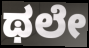
ಥಲೇ